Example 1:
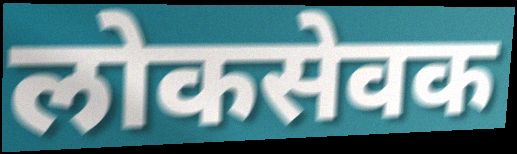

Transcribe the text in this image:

लोकसेवक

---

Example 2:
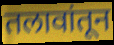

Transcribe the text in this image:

तलावांतून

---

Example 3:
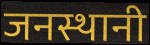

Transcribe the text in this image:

जनस्थानी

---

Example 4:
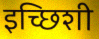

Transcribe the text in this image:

इच्छिशी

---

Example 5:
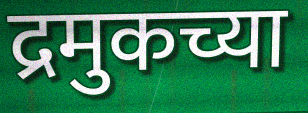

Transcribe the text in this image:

द्रमुकच्या